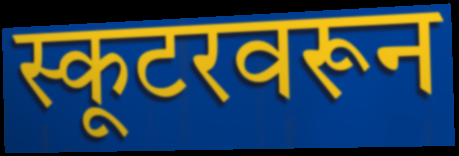
स्कूटरवरून